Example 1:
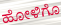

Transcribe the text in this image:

ಹೋಳಿಗೊ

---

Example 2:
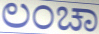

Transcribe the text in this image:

ಲಂಚಾ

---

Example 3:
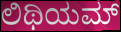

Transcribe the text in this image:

ಲಿಥಿಯಮ್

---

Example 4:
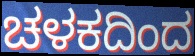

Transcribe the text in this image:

ಚಳಕದಿಂದ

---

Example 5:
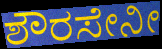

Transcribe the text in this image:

ಶೌರಸೇನೀ